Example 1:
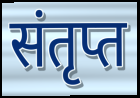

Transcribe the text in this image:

संतृप्त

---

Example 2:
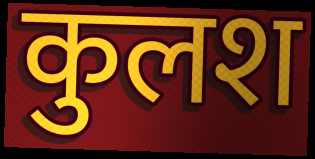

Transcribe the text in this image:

कुलश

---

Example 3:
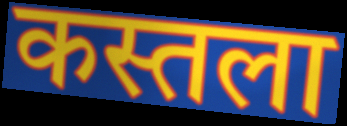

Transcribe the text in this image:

कस्तला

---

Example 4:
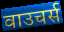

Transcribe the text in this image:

वाउचर्स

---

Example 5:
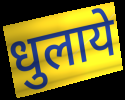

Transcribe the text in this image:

धुलाये